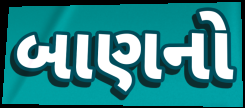
બાણનો